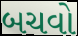
બચવો